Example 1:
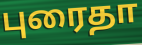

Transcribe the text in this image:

புரைதா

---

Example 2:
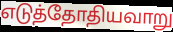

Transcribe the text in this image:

எடுத்தோதியவாறு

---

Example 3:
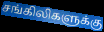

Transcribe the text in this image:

சங்கிலிகளுக்கு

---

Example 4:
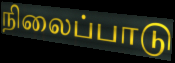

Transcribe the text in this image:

நிலைப்பாடு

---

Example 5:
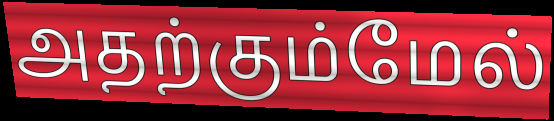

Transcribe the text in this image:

அதற்கும்மேல்